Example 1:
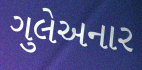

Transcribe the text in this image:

ગુલેઅનાર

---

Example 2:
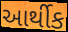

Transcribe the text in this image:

આર્થીક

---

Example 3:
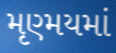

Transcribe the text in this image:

મૃણ્મયમાં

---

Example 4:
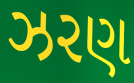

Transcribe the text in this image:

ઝરણ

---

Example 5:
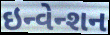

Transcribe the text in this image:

ઇન્વેન્શન